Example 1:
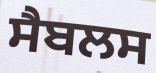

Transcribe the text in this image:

ਸੈਬਲਸ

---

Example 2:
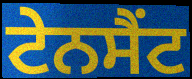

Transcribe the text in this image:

ਟੇਨਸੈਂਟ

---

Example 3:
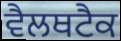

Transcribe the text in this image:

ਵੈਲਥਟੈਕ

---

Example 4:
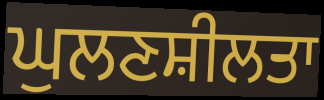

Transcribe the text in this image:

ਘੁਲਣਸ਼ੀਲਤਾ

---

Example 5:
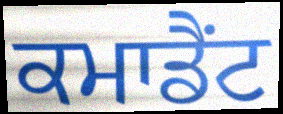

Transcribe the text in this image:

ਕਮਾਡੈਂਟ